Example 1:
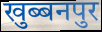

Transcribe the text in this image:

खुब्बनपुर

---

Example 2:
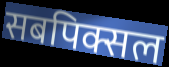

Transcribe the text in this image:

सबपिक्सल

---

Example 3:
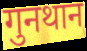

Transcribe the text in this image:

गुनथान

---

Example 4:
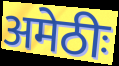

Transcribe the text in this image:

अमेठीः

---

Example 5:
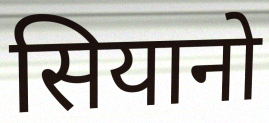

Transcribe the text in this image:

सियानो